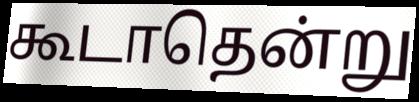
கூடாதென்று